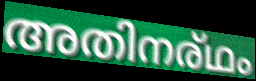
അതിനര്ഥം